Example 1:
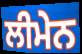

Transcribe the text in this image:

ਲੀਮੇਨ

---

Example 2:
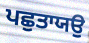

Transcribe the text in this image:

ਪਛੁਤਾਯਉ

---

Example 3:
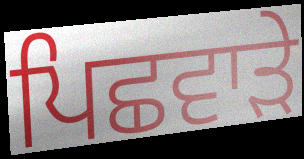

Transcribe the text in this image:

ਪਿਛਵਾੜੇ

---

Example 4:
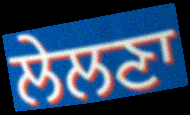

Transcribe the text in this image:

ਲੇਲਣਾ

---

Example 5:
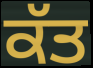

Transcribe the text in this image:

ਕੱਤ